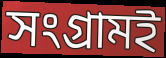
সংগ্রামই